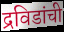
द्रविडांची